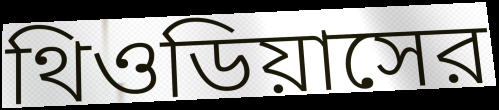
থিওডিয়াসের